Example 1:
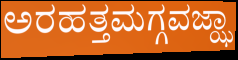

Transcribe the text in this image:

ಅರಹತ್ತಮಗ್ಗವಜ್ಝಾ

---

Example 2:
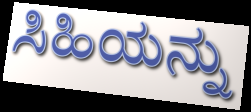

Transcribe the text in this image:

ಸಿಹಿಯನ್ನು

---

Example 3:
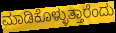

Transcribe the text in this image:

ಮಾಡಿಕೊಳ್ಳುತ್ತಾರೆಂದು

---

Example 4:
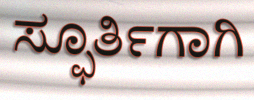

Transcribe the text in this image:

ಸ್ಫೂರ್ತಿಗಾಗಿ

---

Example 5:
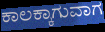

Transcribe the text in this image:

ಕಾಲಕ್ಕಾಗುವಾಗ